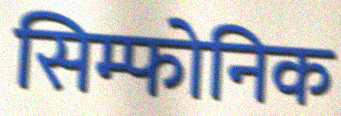
सिम्फोनिक